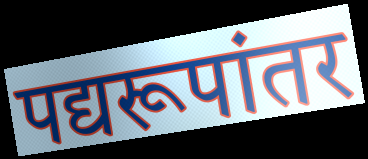
पद्यरूपांतर